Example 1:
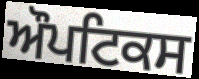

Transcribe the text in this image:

ਔਪਟਿਕਸ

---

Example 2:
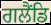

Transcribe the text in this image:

ਗਲੈਂਡਿ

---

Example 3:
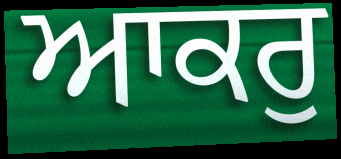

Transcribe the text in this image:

ਆਕਰੁ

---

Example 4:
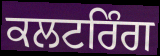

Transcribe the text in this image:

ਕਲਟਰਿੰਗ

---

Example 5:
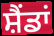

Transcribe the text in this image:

ਸ਼ੈਂਡਾਂ